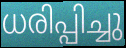
ധരിപ്പിച്ചു